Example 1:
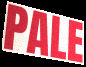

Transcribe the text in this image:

PALE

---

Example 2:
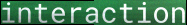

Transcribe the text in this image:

interaction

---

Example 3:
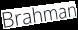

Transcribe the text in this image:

Brahman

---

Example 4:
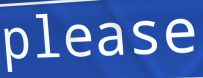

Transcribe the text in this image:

please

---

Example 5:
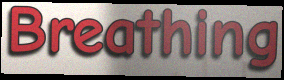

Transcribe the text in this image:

Breathing